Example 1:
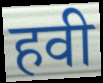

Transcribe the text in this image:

हवी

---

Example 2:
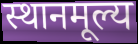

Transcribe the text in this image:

स्थानमूल्य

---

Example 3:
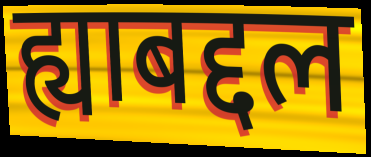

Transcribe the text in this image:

ह्याबद्दल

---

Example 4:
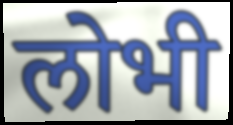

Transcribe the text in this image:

लोभी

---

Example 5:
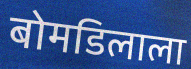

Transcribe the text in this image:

बोमडिलाला